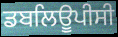
ਡਬਲਿਊਪੀਸੀ